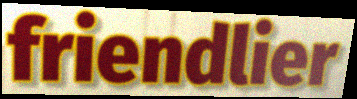
friendlier